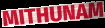
MITHUNAM